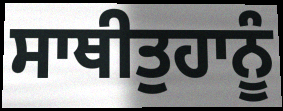
ਸਾਥੀਤੁਹਾਨੂੰ